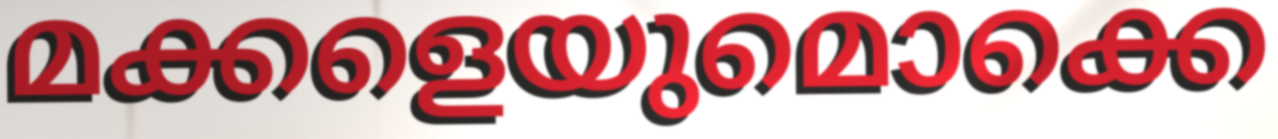
മക്കളെയുമൊക്കെ